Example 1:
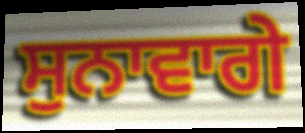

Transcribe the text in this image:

ਸੁਨਾਵਾਗੇ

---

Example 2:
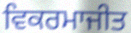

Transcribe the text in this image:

ਵਿਕਰਮਾਜੀਤ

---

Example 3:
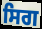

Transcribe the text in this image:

ਸਿਗ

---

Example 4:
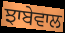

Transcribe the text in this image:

ਝਾਬੇਵਾਲ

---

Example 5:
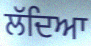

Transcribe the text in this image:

ਲੱਦਿਆ